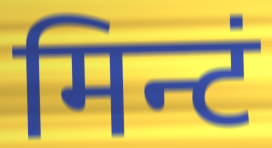
मिन्टं